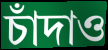
চাঁদাও